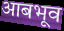
आबभूव